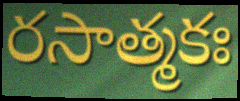
రసాత్మకః